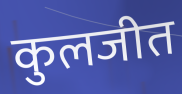
कुलजीत